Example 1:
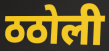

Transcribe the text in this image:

ठठोली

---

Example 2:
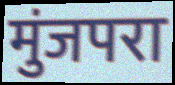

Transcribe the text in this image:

मुंजपरा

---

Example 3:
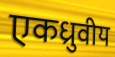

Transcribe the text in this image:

एकध्रुवीय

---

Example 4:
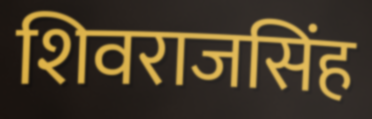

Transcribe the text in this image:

शिवराजसिंह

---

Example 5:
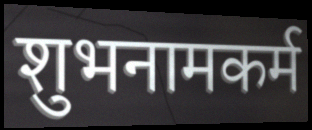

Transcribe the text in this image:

शुभनामकर्म